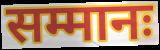
सम्मानः